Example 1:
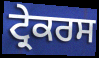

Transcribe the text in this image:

ਟ੍ਰੇਕਰਸ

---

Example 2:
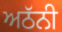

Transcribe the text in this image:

ਅਠੱਨੀ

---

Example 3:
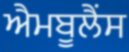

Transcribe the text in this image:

ਐਮਬੂਲੈਂਸ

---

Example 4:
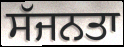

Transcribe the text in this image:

ਸੱਜਨਤਾ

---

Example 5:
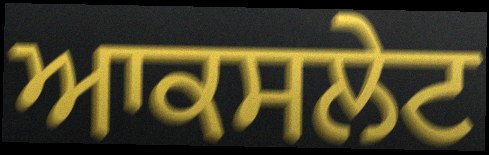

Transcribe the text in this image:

ਆਕਸਲੇਟ